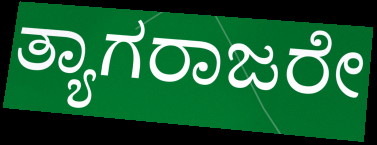
ತ್ಯಾಗರಾಜರೇ